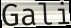
Gali